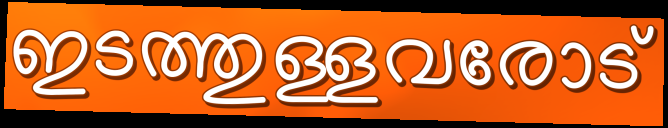
ഇടത്തുള്ളവരോട്